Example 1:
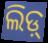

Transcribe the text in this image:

ଲିଡ଼୍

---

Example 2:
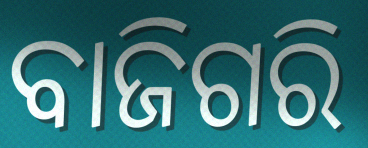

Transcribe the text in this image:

ବାଜିଗରି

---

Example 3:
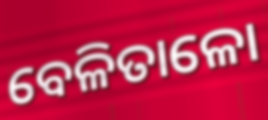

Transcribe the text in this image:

ବେଳିତାଳୋ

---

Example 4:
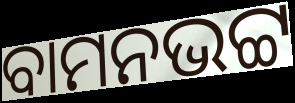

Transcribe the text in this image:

ବାମନଭଟ୍ଟ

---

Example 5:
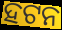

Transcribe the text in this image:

ହଟନ